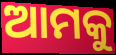
ଆମକୁ